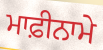
ਮਾਫ਼ੀਨਾਮੇ